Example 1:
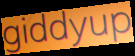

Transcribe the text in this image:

giddyup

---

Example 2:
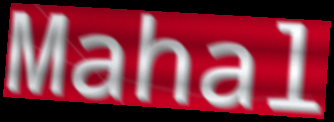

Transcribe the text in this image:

Mahal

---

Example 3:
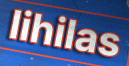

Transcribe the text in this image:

lihilas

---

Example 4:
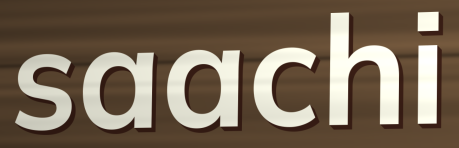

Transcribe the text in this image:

saachi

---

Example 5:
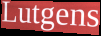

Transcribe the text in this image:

Lutgens